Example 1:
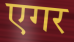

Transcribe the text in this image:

एगर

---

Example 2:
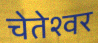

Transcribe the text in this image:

चेतेश्वर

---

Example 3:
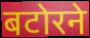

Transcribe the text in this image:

बटोरने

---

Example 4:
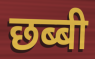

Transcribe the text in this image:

छब्बी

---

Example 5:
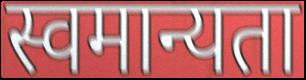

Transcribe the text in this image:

स्वमान्यता